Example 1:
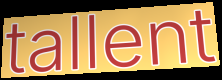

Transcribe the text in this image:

tallent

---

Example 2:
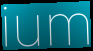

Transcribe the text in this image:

ium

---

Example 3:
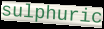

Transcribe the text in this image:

sulphuric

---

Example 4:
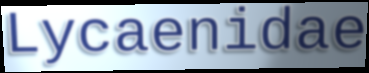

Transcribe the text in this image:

Lycaenidae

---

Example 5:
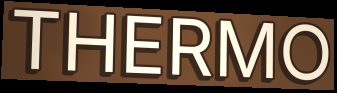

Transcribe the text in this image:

THERMO